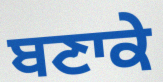
ਬਣਾਕੇ